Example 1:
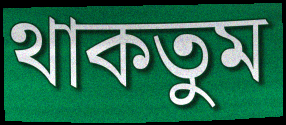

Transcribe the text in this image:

থাকতুম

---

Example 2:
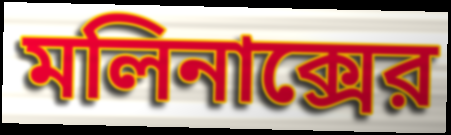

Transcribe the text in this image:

মলিনাক্সের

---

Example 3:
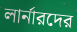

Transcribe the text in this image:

লার্নারদের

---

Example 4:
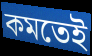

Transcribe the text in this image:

কমতেই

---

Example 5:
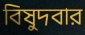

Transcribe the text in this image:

বিষুদবার